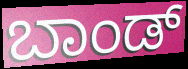
ಬಾಂಡ್